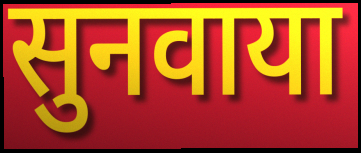
सुनवाया